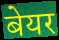
बेयर